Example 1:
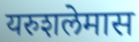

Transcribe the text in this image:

यरुशलेमास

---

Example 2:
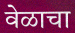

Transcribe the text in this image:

वेळाचा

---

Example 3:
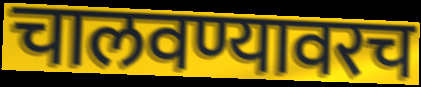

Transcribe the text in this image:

चालवण्यावरच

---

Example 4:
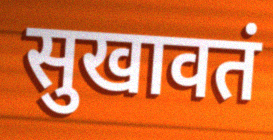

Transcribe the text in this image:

सुखावतं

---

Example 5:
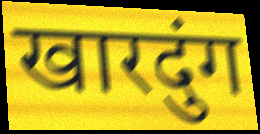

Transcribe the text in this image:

खारदुंग